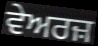
ਵੇਅਰਜ਼